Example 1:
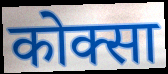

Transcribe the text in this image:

कोक्सा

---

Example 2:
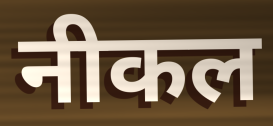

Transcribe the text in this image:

नीकल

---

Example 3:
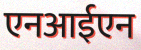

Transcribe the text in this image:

एनआईएन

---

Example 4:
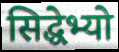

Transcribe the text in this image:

सिद्धेभ्यो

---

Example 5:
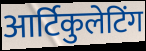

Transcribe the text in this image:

आर्टिकुलेटिंग